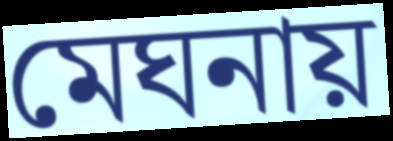
মেঘনায়